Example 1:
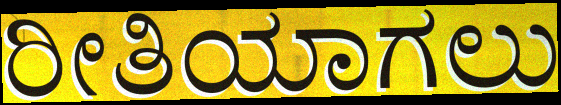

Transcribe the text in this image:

ರೀತಿಯಾಗಲು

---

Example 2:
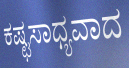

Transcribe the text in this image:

ಕಷ್ಟಸಾಧ್ಯವಾದ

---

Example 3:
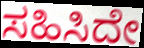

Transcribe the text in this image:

ಸಹಿಸಿದೇ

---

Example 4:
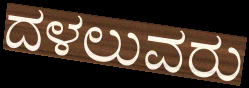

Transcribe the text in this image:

ದಳಲುವರು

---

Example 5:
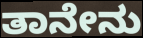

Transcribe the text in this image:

ತಾನೇನು